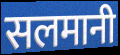
सलमानी